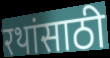
रथांसाठी